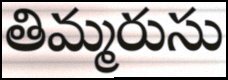
తిమ్మరుసు